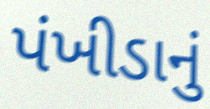
પંખીડાનું